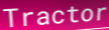
Tractor